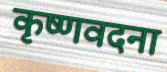
कृष्णवदना